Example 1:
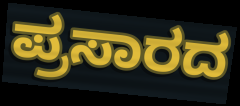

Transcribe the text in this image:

ಪ್ರಸಾರದ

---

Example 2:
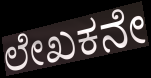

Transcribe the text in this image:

ಲೇಖಕನೇ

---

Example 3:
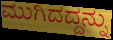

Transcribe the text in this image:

ಮುಗಿದದ್ದನ್ನು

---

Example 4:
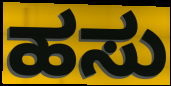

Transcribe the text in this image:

ಹಸು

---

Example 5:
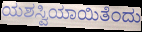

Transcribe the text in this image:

ಯಶಸ್ವಿಯಾಯಿತೆಂದು